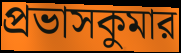
প্রভাসকুমার